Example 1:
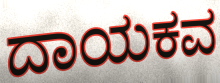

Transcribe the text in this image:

ದಾಯಕವ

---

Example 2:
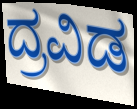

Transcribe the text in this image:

ದ್ರವಿಡ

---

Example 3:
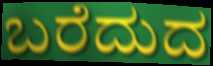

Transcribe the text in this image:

ಬರೆದುದ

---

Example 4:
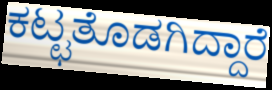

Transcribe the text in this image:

ಕಟ್ಟತೊಡಗಿದ್ದಾರೆ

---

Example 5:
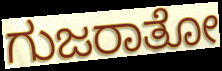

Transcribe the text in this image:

ಗುಜರಾತೋ